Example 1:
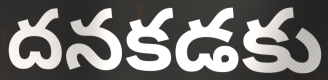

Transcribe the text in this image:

దనకడకు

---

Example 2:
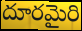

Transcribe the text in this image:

దూరమైరి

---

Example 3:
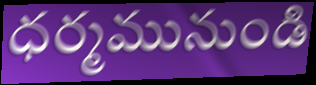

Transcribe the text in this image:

ధర్మమునుండి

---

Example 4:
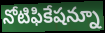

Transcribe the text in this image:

నోటిఫికేషన్నూ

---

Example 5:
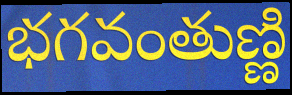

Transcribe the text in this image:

భగవంతుణ్ణి